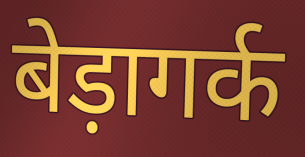
बेड़ागर्क